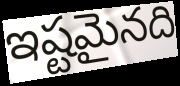
ఇష్టమైనది